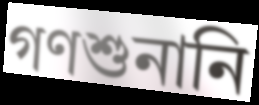
গণশুনানি